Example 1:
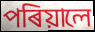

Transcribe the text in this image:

পৰিয়ালে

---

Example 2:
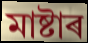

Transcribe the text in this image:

মাষ্টাৰ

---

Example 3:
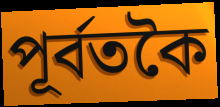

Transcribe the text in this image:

পূৰ্বতকৈ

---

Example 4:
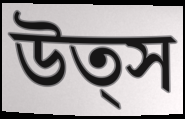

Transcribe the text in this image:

উত্স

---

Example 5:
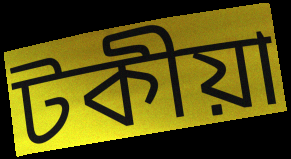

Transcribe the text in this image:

টকীয়া